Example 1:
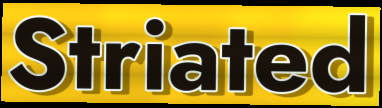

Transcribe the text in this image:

Striated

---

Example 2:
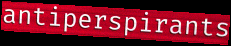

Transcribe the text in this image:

antiperspirants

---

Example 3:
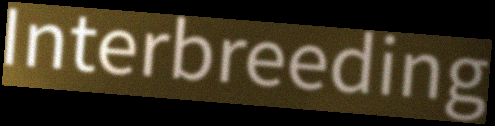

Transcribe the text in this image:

Interbreeding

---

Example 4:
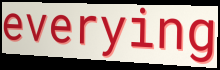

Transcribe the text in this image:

everying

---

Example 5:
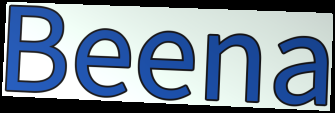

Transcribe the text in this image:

Beena